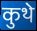
कुथे